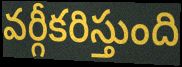
వర్గీకరిస్తుంది